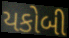
યકોબી